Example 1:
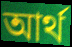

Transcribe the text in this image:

আৰ্থ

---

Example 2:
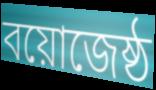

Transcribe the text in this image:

বয়োজেষ্ঠ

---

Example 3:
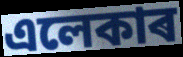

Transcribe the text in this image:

এলেকাৰ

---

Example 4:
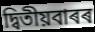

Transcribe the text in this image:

দ্বিতীয়বাৰৰ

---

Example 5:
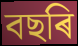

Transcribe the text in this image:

বছৰি